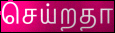
செய்றதா